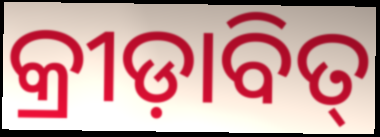
କ୍ରୀଡ଼ାବିତ୍